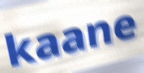
kaane